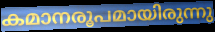
കമാനരൂപമായിരുന്നു